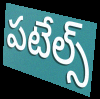
పటేల్స్